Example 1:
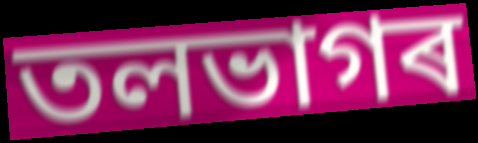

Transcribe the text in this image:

তলভাগৰ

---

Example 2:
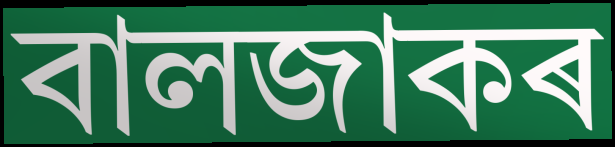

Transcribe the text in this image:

বালজাকৰ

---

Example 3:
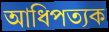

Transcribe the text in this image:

আধিপত্যক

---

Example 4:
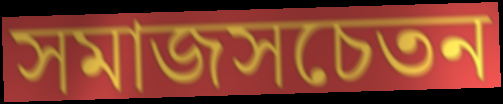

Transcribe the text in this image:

সমাজসচেতন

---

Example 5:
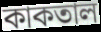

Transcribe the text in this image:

কাকতাল